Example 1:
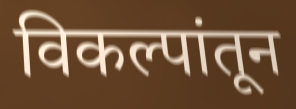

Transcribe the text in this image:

विकल्पांतून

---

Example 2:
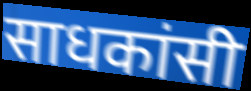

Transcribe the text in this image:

साधकांसी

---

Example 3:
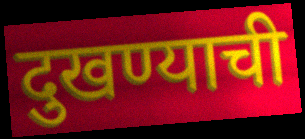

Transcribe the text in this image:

दुखण्याची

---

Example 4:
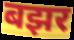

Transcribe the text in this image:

बझर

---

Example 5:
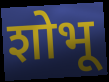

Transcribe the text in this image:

शोभू